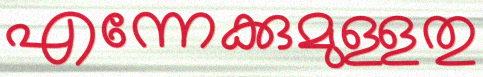
എന്നേക്കുമുള്ളതു